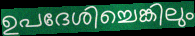
ഉപദേശിച്ചെങ്കിലും